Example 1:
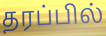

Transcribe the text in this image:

தரப்பில்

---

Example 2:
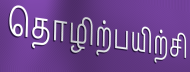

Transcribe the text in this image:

தொழிற்பயிற்சி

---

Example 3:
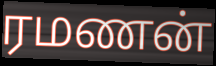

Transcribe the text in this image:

ரமணன்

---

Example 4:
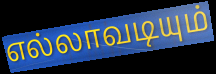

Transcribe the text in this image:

எல்லாவடியும்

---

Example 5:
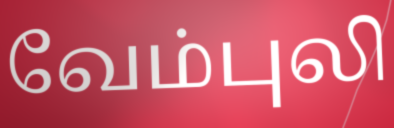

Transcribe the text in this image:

வேம்புலி